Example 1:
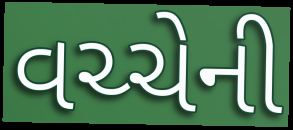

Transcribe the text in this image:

વચ્ચેની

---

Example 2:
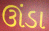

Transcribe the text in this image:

ઊંડા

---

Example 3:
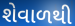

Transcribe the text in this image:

શેવાળથી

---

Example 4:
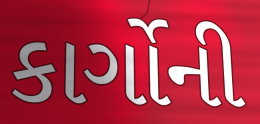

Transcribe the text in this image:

કાર્ગોની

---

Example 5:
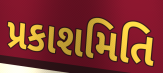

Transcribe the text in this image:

પ્રકાશમિતિ